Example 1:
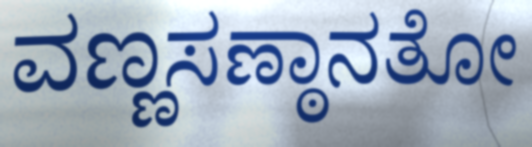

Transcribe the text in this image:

ವಣ್ಣಸಣ್ಠಾನತೋ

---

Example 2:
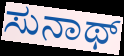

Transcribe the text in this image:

ಸುನಾಥ್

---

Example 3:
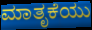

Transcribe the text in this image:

ಮಾತೃಕೆಯು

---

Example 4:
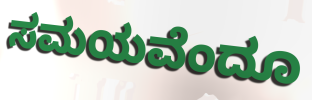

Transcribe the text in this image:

ಸಮಯವೆಂದೂ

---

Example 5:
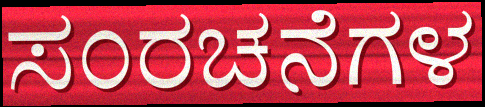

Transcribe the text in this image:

ಸಂರಚನೆಗಳ